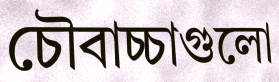
চৌবাচ্চাগুলো